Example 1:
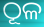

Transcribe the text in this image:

ଠୂଳ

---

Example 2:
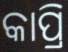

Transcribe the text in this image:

କାପ୍ରି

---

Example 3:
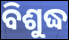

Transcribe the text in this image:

ବିଶୁଦ୍ଧ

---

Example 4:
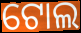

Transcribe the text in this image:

ଟୋଲ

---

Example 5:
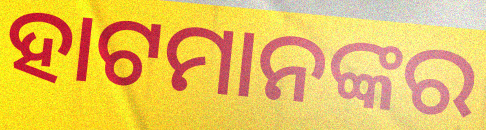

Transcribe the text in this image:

ହାଟମାନଙ୍କର